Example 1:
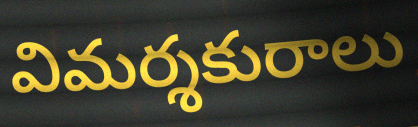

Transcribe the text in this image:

విమర్శకురాలు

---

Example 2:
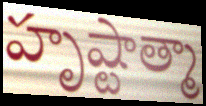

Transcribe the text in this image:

హృష్టాత్మా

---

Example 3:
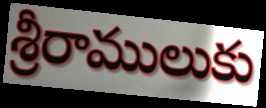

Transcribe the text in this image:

శ్రీరాములుకు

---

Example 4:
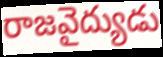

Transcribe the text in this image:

రాజవైద్యుడు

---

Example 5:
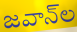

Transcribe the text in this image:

జవాన్‌ల